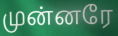
முன்னரே